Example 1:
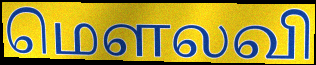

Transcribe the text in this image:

மௌலவி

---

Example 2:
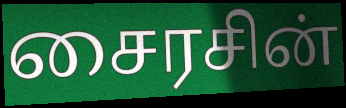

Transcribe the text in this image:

சைரசின்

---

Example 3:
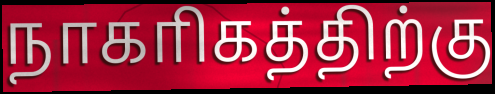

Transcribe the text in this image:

நாகரிகத்திற்கு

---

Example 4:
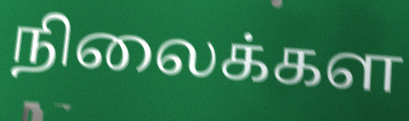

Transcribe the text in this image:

நிலைக்கள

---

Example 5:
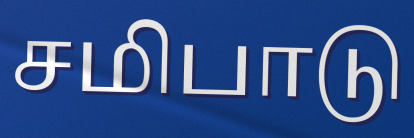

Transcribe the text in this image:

சமிபாடு